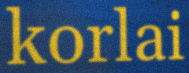
korlai